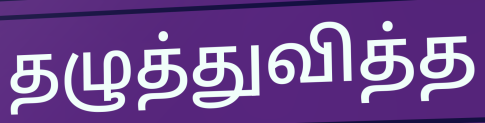
தழுத்துவித்த